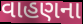
વાહણના